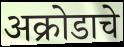
अक्रोडाचे